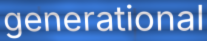
generational